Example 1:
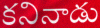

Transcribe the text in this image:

కనినాడు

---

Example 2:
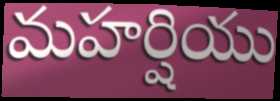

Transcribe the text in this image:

మహర్షియు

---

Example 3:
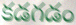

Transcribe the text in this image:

కడగడం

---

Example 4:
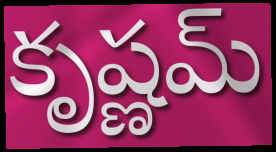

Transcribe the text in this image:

కృష్ణమ్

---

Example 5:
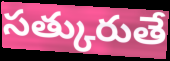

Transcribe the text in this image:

సత్కురుతే